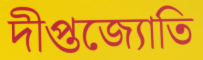
দীপ্তজ্যোতি